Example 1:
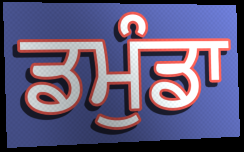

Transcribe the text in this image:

ਡਮੁੰਡਾ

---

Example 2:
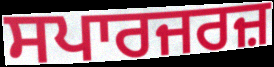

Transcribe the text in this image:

ਸਪਾਰਜਰਜ਼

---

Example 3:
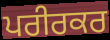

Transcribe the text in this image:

ਪਰੀਰਕਰ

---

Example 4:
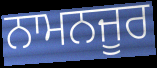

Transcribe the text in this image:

ਨਾਮਨਜੂਰ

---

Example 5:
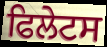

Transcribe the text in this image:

ਫਿਲੇਟਸ